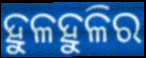
ହୁଳହୁଳିର